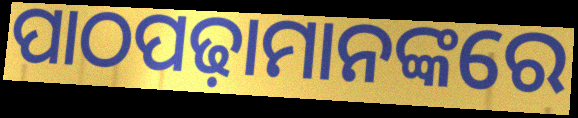
ପାଠପଢ଼ାମାନଙ୍କରେ